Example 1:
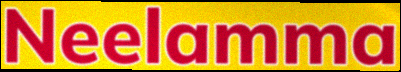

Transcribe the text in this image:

Neelamma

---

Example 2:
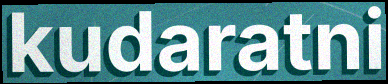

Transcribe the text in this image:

kudaratni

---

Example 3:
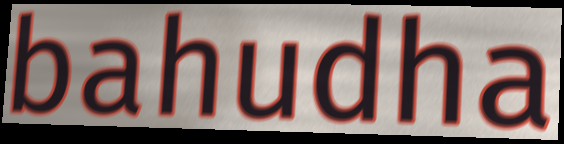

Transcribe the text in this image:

bahudha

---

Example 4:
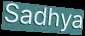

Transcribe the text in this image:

Sadhya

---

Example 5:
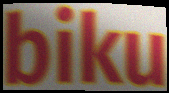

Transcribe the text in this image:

biku